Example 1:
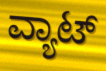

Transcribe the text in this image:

ವ್ಯಾಟ್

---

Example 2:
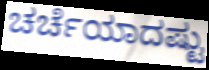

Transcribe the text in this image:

ಚರ್ಚೆಯಾದಷ್ಟು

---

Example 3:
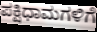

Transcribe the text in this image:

ಪಕ್ಷಿಧಾಮಗಳಿಗೆ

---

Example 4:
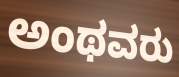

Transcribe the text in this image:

ಅಂಥವರು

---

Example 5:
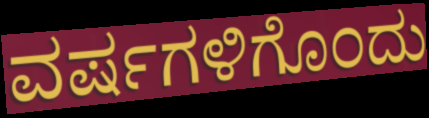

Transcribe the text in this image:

ವರ್ಷಗಳಿಗೊಂದು